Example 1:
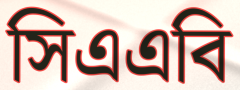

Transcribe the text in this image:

সিএএবি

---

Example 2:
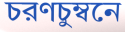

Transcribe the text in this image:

চরণচুম্বনে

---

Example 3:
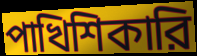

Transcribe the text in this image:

পাখিশিকারি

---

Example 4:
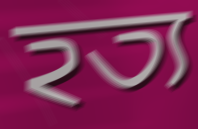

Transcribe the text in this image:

হত্য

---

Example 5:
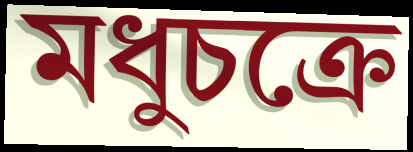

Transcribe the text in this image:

মধুচক্রে